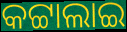
କଟ୍ଟାଲାଇ